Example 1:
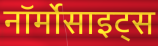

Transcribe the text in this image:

नॉर्मोसाइट्स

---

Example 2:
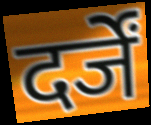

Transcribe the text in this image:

दर्जें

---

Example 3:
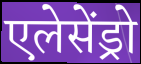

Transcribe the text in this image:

एलेसेंड्रो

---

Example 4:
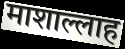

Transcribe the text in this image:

माशाल्लाह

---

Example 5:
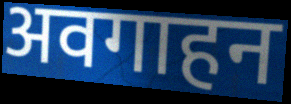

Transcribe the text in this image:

अवगाहन